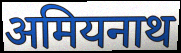
अमियनाथ